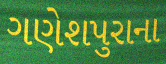
ગણેશપુરાના